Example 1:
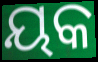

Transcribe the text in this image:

ୟକ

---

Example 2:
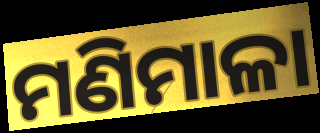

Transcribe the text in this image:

ମଣିମାଳା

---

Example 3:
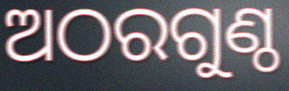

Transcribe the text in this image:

ଅଠରଗୁଣ୍ଠ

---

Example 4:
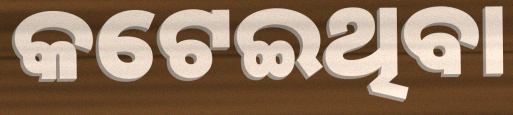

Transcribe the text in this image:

କଟେଇଥିବା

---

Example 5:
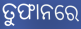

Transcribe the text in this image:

ତୁଫାନରେ